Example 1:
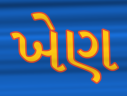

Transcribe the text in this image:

ખેણ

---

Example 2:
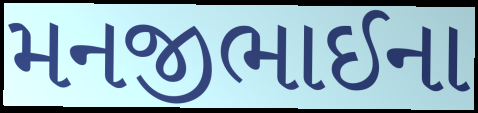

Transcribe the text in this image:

મનજીભાઈના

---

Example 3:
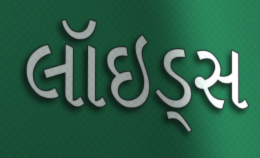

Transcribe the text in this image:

લૉઇડ્સ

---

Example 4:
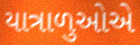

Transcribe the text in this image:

યાત્રાળુઓએ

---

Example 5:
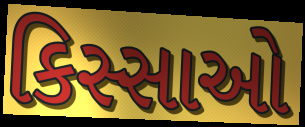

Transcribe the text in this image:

કિસ્સાઓ